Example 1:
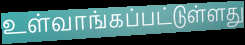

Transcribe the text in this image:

உள்வாங்கப்பட்டுள்ளது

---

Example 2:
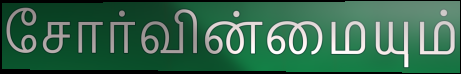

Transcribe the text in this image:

சோர்வின்மையும்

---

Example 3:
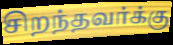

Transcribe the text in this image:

சிறந்தவர்க்கு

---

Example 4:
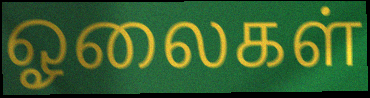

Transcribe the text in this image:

ஓலைகள்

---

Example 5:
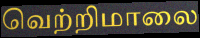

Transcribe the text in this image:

வெற்றிமாலை